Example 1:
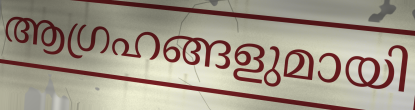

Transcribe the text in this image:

ആഗ്രഹങ്ങളുമായി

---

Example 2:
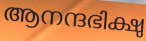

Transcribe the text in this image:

ആനന്ദഭിക്ഷു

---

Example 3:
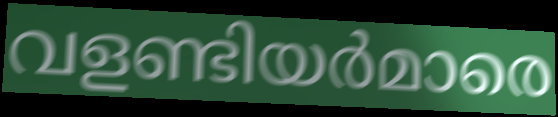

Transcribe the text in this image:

വളണ്ടിയർമാരെ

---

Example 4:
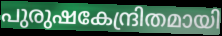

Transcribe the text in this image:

പുരുഷകേന്ദ്രിതമായി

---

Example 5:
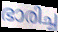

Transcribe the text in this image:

ഭാരിച്ച